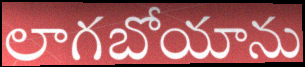
లాగబోయాను